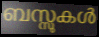
ബസ്സുകൾ